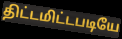
திட்டமிட்டபடியே